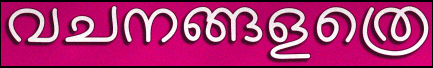
വചനങ്ങളത്രെ